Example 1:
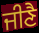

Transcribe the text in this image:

ਜੀਣੈ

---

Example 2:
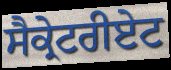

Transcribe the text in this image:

ਸੈਕ੍ਰੇਟਰੀਏਟ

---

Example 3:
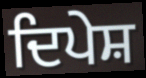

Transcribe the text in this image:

ਦਿਪੇਸ਼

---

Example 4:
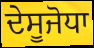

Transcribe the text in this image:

ਦੇਸੂਜੋਧਾ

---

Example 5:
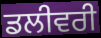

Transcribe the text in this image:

ਡਲੀਵਰੀ